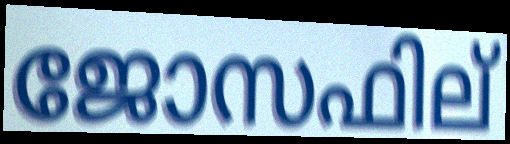
ജോസഫില്